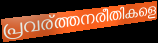
പ്രവര്ത്തനരീതികളെ